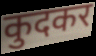
कुदकर